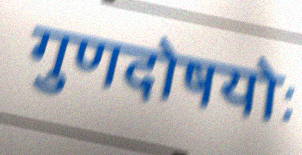
गुणदोषयोः